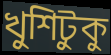
খুশিটুকু